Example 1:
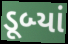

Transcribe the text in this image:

ડૂબ્યાં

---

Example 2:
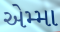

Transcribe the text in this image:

એમ્મા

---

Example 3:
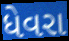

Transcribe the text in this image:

ધેવરા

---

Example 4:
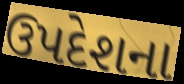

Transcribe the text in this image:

ઉપદેશના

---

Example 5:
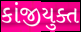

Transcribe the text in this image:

કાંજીયુક્ત